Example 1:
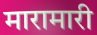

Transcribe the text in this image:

मारामारी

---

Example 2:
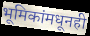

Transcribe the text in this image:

भूमिकांमधूनही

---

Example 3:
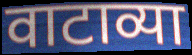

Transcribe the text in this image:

वाटाव्या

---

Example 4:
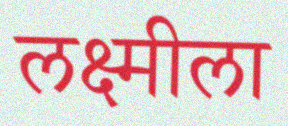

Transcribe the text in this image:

लक्ष्मीला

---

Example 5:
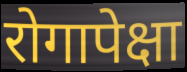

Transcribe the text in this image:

रोगापेक्षा